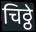
चिठ्ठे